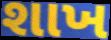
શાખ